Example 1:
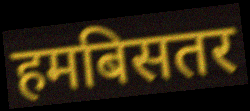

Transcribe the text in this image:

हमबिसतर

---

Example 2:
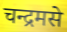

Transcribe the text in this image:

चन्द्रमसे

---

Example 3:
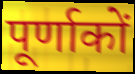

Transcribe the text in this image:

पूर्णाकों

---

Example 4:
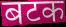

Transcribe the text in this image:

बटक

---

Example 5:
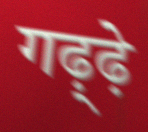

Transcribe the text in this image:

गढ़्ढ़े